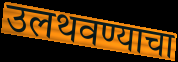
उलथवण्याचा